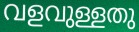
വളവുള്ളതു